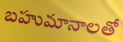
బహుమానాలతో